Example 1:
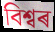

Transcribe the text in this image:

বিশ্বৰ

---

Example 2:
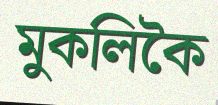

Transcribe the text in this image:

মুকলিকৈ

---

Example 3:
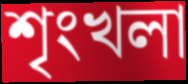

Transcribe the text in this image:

শৃংখলা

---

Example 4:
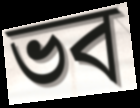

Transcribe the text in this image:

ভব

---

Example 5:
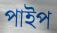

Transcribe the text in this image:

পাইপ